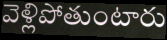
వెళ్లిపోతుంటారు